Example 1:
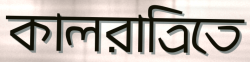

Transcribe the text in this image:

কালরাত্রিতে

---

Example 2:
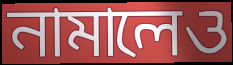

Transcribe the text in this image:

নামালেও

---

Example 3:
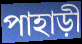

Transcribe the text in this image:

পাহাড়ী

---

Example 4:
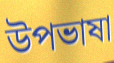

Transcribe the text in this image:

উপভাষা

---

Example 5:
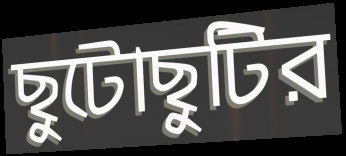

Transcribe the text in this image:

ছুটোছুটির